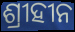
ଶ୍ରୀହୀନ